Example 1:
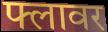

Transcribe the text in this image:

फ्लावर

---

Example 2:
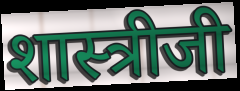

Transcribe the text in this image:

शास्त्रीजी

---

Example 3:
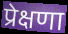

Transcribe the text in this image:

प्रेक्षणा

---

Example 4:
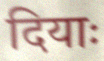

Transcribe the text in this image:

दियाः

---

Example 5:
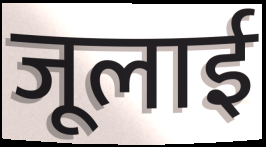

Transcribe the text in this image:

जूलाई